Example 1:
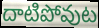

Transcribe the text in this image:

దాటిపోవుట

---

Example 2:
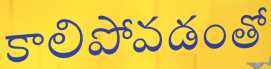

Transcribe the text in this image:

కాలిపోవడంతో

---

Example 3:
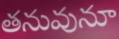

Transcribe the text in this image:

తనువునూ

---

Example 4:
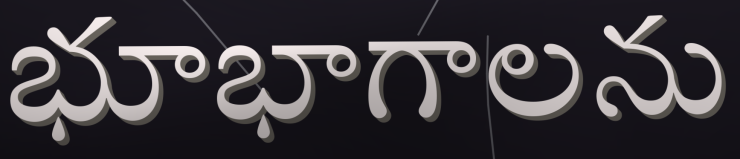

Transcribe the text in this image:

భూభాగాలను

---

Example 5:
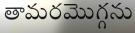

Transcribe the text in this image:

తామరమొగ్గను